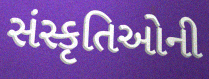
સંસ્કૃતિઓની